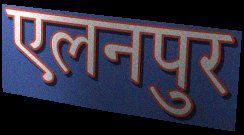
एलनपुर